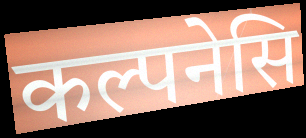
कल्पनेसि